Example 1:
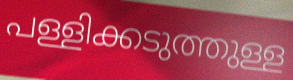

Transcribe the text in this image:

പള്ളിക്കടുത്തുള്ള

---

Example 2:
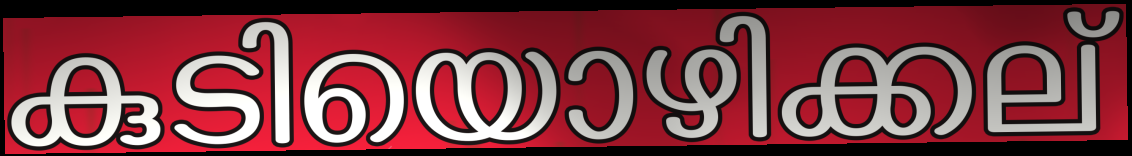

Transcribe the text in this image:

കുടിയൊഴിക്കല്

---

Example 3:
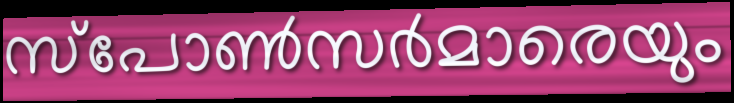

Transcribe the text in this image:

സ്പോൺസർമാരെയും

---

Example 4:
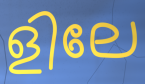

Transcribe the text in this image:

ളിലേ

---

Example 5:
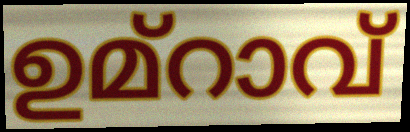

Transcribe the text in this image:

ഉമ്റാവ്